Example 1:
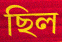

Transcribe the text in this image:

ছিল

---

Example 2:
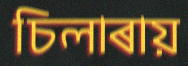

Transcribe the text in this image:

চিলাৰায়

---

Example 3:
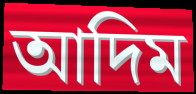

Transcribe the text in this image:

আদিম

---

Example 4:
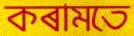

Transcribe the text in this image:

কৰামতে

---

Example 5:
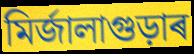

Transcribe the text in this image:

মিৰ্জালাগুড়াৰ